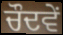
ਚੌਦਵੇਂ